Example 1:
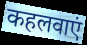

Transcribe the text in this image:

कहलवाएं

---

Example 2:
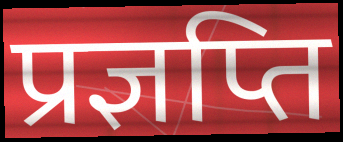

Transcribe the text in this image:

प्रज्ञप्ति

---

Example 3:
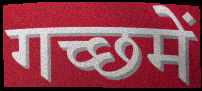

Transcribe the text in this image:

गच्छमें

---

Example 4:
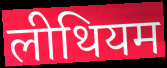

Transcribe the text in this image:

लीथियम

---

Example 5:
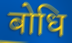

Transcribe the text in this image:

बोधि